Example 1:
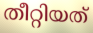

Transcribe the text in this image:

തീറ്റിയത്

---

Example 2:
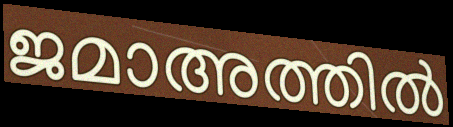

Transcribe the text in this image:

ജമാഅത്തിൽ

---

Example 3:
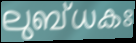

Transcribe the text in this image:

ലുബ്ധകഃ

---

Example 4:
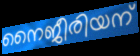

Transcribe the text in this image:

നൈജീരിയന്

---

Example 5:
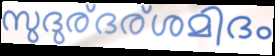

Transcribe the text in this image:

സുദുര്ദര്ശമിദം